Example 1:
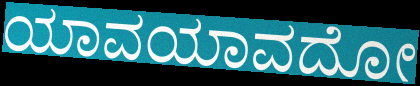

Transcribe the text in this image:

ಯಾವಯಾವದೋ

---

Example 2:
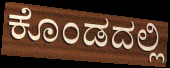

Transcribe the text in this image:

ಕೊಂಡದಲ್ಲಿ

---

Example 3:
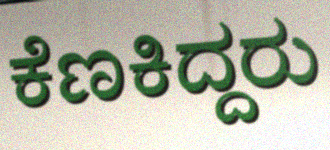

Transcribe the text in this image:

ಕೆಣಕಿದ್ದರು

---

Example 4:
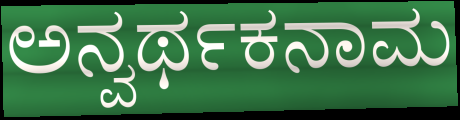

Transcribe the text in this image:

ಅನ್ವರ್ಥಕನಾಮ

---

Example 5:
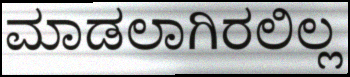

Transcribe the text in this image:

ಮಾಡಲಾಗಿರಲಿಲ್ಲ